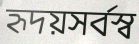
হৃদয়সর্বস্ব